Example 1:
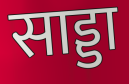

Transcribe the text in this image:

साड्डा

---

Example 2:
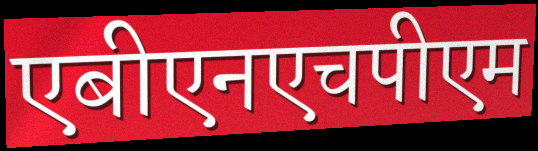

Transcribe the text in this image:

एबीएनएचपीएम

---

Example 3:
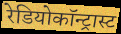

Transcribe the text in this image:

रेडियोकॉन्ट्रास्ट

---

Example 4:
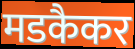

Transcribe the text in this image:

मडकैकर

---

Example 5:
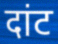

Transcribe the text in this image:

दांट